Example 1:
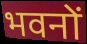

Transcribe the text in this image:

भवनों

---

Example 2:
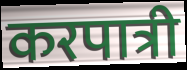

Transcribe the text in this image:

करपात्री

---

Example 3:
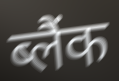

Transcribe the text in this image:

ब्लैंक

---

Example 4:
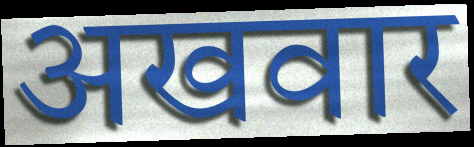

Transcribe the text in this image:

अखवार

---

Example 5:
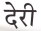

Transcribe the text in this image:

देरी